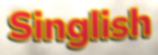
Singlish